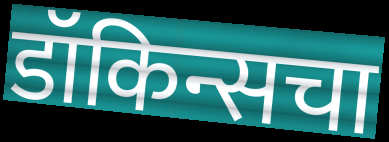
डॉकिन्सचा